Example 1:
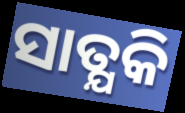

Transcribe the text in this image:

ସାତ୍ଯକି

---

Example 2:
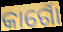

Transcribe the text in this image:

କାର୍ଗୋ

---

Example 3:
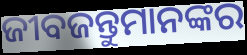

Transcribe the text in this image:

ଜୀବଜନ୍ତୁମାନଙ୍କର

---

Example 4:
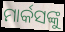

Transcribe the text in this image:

ମାର୍କସଙ୍କୁ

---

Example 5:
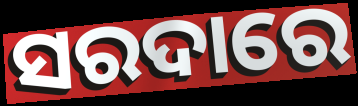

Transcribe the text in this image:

ସରଦାରେ